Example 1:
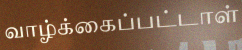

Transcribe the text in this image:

வாழ்க்கைப்பட்டாள்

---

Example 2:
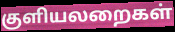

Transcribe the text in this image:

குளியலறைகள்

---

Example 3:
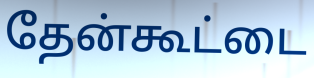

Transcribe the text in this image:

தேன்கூட்டை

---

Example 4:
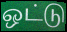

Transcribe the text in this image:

ஒட்டு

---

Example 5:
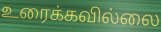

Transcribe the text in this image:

உரைக்கவில்லை